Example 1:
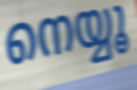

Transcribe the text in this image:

നെയ്യൂ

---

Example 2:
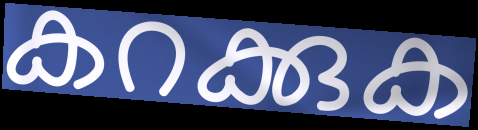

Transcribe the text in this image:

കറക്കുക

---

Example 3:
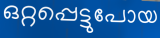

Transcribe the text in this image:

ഒറ്റപ്പെട്ടുപോയ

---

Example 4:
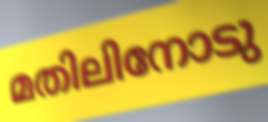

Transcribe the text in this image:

മതിലിനോടു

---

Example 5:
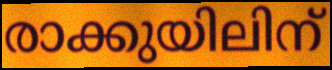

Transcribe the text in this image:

രാക്കുയിലിന്